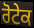
ਰੋਟੇਕ